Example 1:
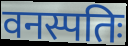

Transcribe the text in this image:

वनस्पतिः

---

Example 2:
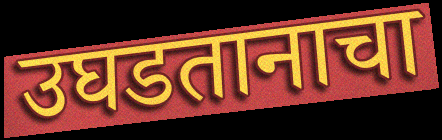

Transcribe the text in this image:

उघडतानाचा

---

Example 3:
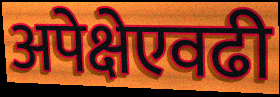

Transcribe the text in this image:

अपेक्षेएवढी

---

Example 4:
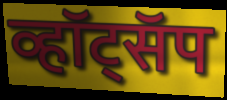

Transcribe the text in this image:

व्हॉट्सॅप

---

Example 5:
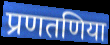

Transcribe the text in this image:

प्रणतणिया